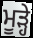
ਮੂੜ੍ਹੇ